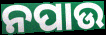
ନପାଉ